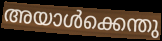
അയാൾക്കെന്തു